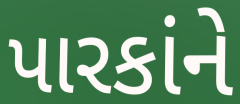
પારકાંને